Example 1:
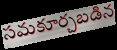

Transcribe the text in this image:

సమకూర్చబడిన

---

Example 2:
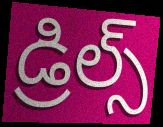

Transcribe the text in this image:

డ్రిల్స్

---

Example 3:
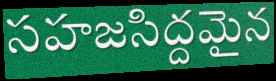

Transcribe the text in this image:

సహజసిద్దమైన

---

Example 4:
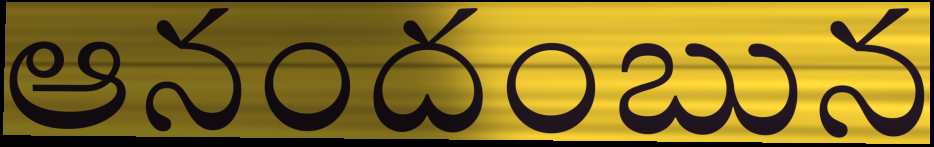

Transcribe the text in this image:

ఆనందంబున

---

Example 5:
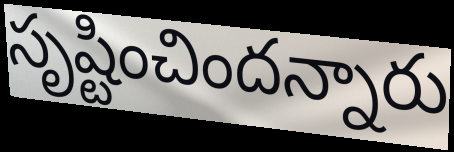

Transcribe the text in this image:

సృష్టించిందన్నారు